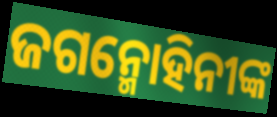
ଜଗନ୍ମୋହିନୀଙ୍କ